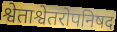
श्वेताश्वेतरोपनिषद